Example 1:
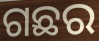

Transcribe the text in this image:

ଗଛର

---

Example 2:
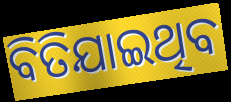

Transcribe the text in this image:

ବିତିଯାଇଥିବ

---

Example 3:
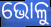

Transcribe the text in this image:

ଭୋଳୁ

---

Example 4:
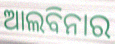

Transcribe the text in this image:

ଆଲବିନାର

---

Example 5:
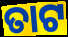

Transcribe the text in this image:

ତାଟ